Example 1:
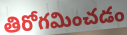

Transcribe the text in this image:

తిరోగమించడం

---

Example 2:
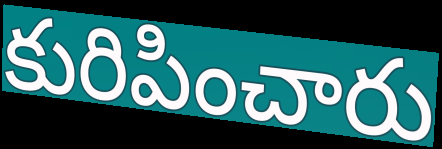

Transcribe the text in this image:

కురిపించారు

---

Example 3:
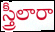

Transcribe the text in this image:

స్త్రీలారా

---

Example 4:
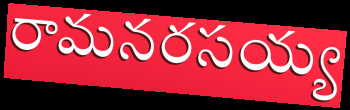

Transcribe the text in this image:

రామనరసయ్య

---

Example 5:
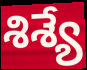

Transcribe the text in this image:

శిశ్యే